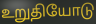
உறுதியோடு